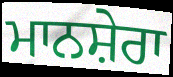
ਮਾਨਸ਼ੇਰਾ